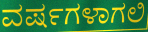
ವರ್ಷಗಳಾಗಲಿ